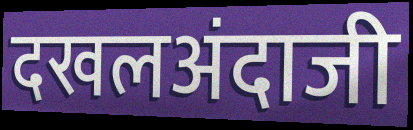
दखलअंदाजी